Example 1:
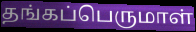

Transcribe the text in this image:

தங்கப்பெருமாள்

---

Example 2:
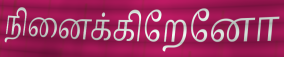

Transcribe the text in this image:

நினைக்கிறேனோ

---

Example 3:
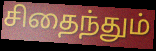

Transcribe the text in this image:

சிதைந்தும்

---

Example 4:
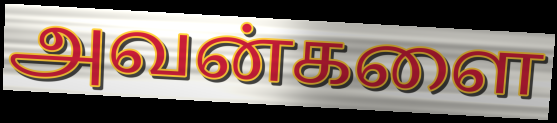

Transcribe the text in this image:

அவன்களை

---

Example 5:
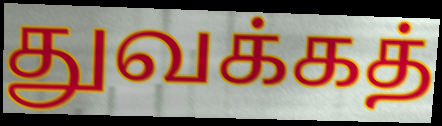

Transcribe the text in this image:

துவக்கத்